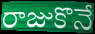
రాజుకొనే